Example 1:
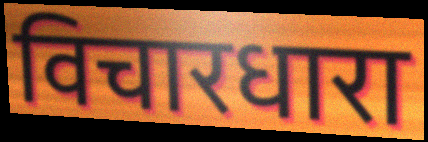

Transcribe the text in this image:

विचारधारा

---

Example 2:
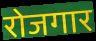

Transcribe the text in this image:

रोजगार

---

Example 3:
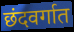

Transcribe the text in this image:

छंदवर्गात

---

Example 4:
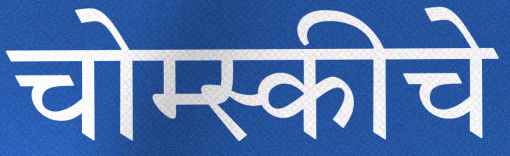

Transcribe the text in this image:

चोम्स्कीचे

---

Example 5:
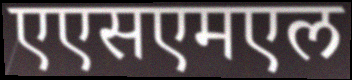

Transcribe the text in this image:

एएसएमएल